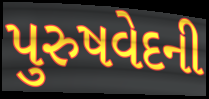
પુરુષવેદની